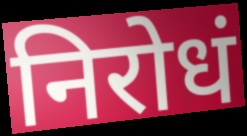
निरोधं